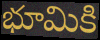
భూమికి